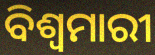
ବିଶ୍ୱମାରୀ